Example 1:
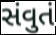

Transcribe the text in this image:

સંવુતં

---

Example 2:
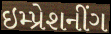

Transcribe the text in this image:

ઇમ્પ્રેશનીંગ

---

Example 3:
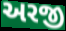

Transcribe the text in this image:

અરજી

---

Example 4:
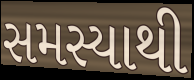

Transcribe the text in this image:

સમસ્યાથી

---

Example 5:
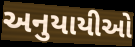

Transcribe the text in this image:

અનુયાયીઓ